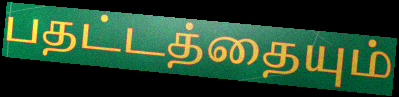
பதட்டத்தையும்